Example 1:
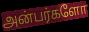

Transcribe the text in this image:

அன்பர்களோ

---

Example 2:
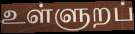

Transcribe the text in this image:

உள்ளுறப்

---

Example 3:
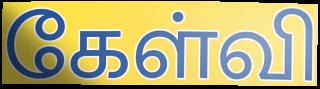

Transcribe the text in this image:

கேள்வி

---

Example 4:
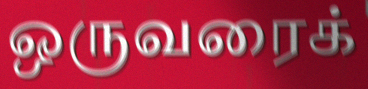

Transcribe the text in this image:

ஒருவரைக்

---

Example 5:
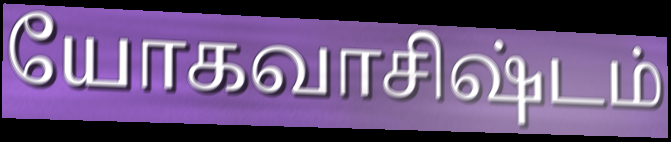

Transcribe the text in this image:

யோகவாசிஷ்டம்